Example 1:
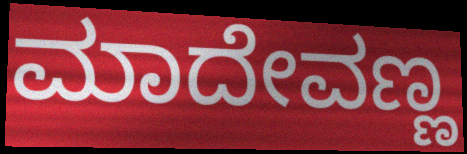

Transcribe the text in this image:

ಮಾದೇವಣ್ಣ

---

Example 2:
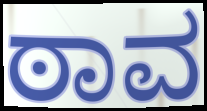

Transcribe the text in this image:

ಠಾವ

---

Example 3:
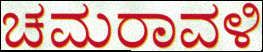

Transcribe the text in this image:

ಚಮರಾವಳಿ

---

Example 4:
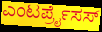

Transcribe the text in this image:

ಎಂಟರ್ಪ್ರೈಸಸ್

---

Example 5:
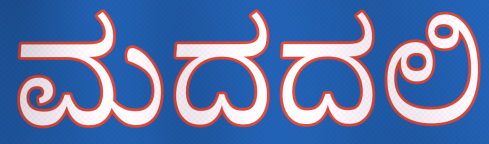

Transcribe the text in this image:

ಮದದಲಿ